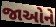
જાઓને